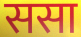
ससा